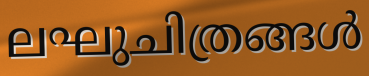
ലഘുചിത്രങ്ങൾ